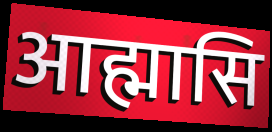
आह्मासि